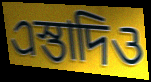
এস্তাদিও